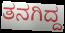
ತನಗಿದ್ದ